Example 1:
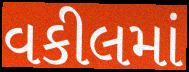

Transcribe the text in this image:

વકીલમાં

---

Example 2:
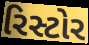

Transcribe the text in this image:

રિસ્ટોર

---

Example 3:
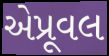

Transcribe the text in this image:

એપ્રૂવલ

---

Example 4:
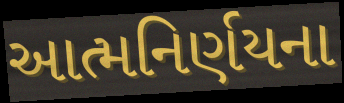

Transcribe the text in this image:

આત્મનિર્ણયના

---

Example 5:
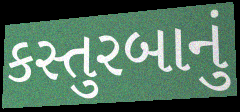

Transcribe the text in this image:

કસ્તુરબાનું